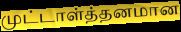
முட்டாள்த்தனமான